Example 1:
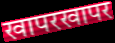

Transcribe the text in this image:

खापरखापर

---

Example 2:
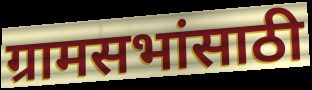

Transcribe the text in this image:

ग्रामसभांसाठी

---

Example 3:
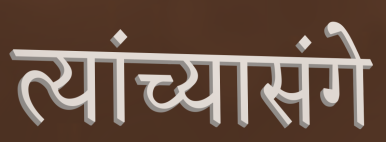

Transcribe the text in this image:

त्यांच्यासंगे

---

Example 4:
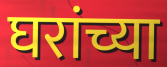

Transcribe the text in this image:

घरांच्या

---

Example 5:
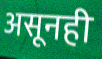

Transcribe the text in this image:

असूनही